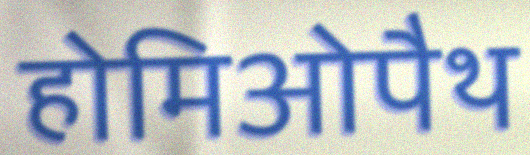
होमिओपैथ